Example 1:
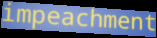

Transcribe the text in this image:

impeachment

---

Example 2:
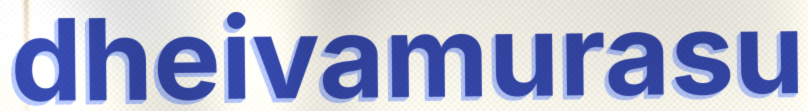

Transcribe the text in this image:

dheivamurasu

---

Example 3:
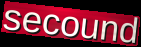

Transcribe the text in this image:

secound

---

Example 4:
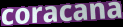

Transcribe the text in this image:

coracana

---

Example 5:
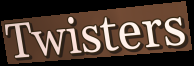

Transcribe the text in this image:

Twisters